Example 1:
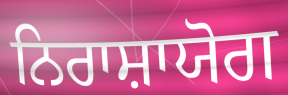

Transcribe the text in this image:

ਨਿਰਾਸ਼ਾਯੋਗ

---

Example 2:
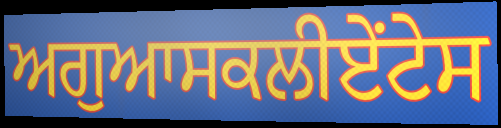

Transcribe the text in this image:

ਅਗੁਆਸਕਲੀਏਂਟੇਸ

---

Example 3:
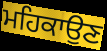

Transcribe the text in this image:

ਮਹਿਕਾਉਣ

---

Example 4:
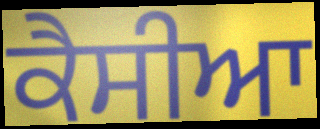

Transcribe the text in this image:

ਕੈਸੀਆ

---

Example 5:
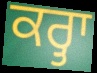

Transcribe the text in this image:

ਕਰ੍ਤਾ